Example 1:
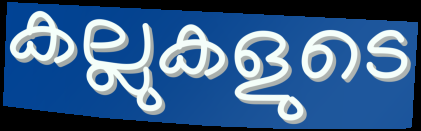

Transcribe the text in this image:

കല്ലുകളുടെ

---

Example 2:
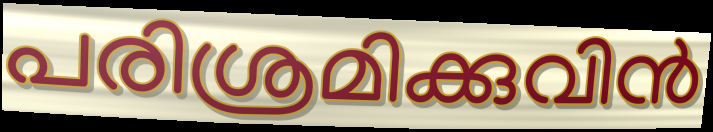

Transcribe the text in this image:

പരിശ്രമിക്കുവിൻ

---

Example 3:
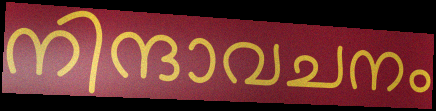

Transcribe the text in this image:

നിന്ദാവചനം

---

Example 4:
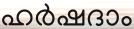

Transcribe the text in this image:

ഹർഷദാം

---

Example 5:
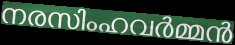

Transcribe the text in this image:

നരസിംഹവർമ്മൻ